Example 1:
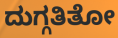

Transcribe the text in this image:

ದುಗ್ಗತಿತೋ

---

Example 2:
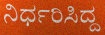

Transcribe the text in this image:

ನಿರ್ಧರಿಸಿದ್ದ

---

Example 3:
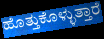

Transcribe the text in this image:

ಹೊತ್ತುಕೊಳ್ಳುತ್ತಾರೆ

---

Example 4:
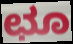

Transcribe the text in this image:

ಛೂ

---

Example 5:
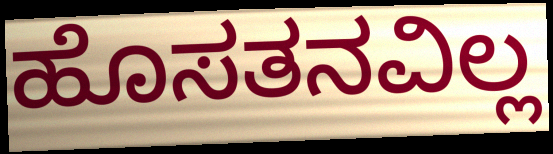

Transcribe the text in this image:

ಹೊಸತನವಿಲ್ಲ